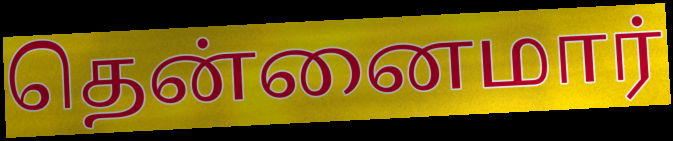
தென்னைமார்